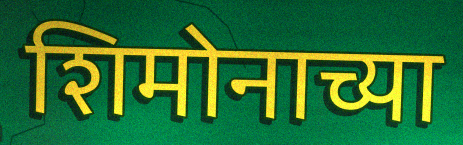
शिमोनाच्या